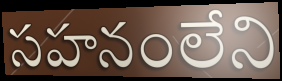
సహనంలేని